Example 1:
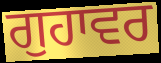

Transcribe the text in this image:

ਗੁਹਾਵਰ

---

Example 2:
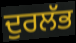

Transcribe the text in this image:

ਦੁਰਲੱਭ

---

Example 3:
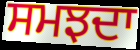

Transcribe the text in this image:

ਸਮਝਦਾ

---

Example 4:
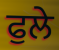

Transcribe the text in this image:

ਫੁਲੇ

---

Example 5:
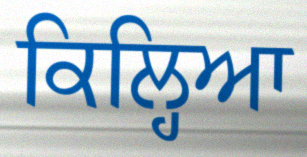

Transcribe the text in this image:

ਕਿਲ੍ਹਿਆ